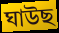
ঘাউছ